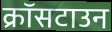
क्रॉसटाउन